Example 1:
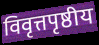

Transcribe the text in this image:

विवृत्तपृष्ठीय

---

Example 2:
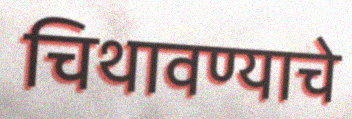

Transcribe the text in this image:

चिथावण्याचे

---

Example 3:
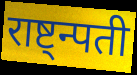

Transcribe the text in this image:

राष्ट्न्पती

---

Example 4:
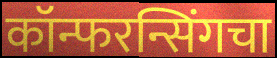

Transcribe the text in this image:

कॉन्फरन्सिंगचा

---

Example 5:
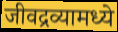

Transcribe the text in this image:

जीवद्रव्यामध्ये